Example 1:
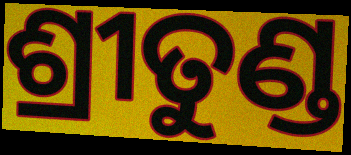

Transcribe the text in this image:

ଶ୍ରୀତୁଣ୍ଡ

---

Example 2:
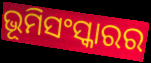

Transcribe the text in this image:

ଭୂମିସଂସ୍କାରର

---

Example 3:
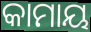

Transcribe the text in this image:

କାମାୟ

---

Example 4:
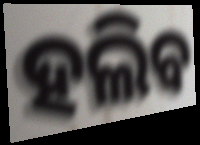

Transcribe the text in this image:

ହଲିବ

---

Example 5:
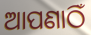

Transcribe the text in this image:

ଆପଣାଠିଁ